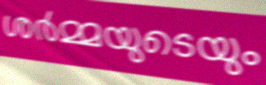
ശർമ്മയുടെയും